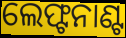
ଲେଫ୍ଟନାଣ୍ଟ